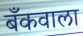
बँकवाला